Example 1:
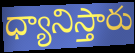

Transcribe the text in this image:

ధ్యానిస్తారు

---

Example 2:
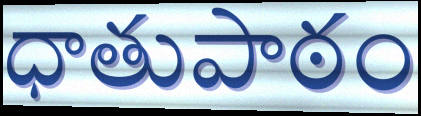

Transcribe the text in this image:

ధాతుపాఠం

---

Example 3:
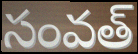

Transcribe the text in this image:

సంవత్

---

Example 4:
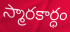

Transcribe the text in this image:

స్మారకార్ధం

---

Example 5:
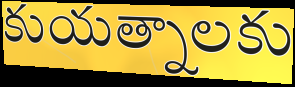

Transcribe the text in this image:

కుయత్నాలకు